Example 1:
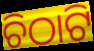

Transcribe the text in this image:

ଚିଠାଟି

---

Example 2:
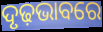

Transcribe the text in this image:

ଦୃଢ଼ଭାବରେ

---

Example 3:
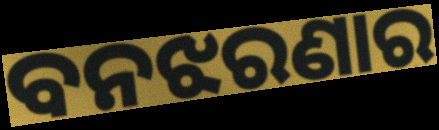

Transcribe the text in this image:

ବନଝରଣାର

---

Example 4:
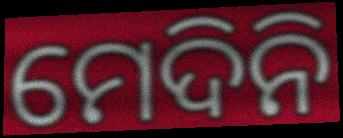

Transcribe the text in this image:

ମେଦିନି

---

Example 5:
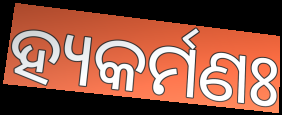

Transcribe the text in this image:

ହ୍ୟକର୍ମଣଃ